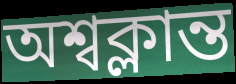
অশ্বক্লান্ত